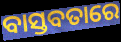
ବାସ୍ତବତାରେ